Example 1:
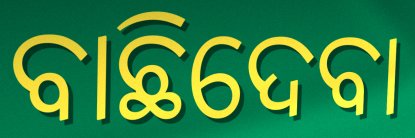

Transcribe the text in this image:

ବାଛିଦେବା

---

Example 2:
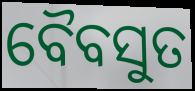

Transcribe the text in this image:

ବୈବସୁତ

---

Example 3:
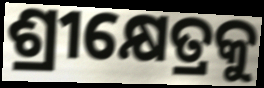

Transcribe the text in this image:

ଶ୍ରୀକ୍ଷେତ୍ରକୁ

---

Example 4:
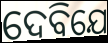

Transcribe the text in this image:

ଦେବିଯେ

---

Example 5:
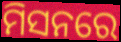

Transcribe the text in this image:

ମିସନରେ